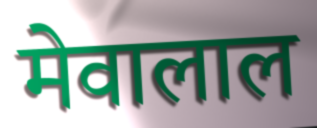
मेवालाल